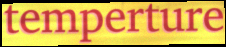
temperture